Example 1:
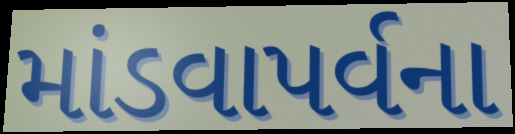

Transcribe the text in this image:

માંડવાપર્વના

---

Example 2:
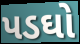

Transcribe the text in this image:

પડઘો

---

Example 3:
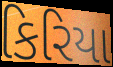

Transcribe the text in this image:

કિરિયા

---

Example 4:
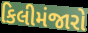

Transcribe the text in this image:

કિલીમંજારો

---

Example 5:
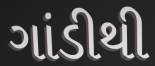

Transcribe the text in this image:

ગાંડીથી